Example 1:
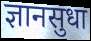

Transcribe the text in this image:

ज्ञानसुधा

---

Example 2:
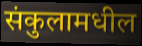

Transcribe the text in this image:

संकुलामधील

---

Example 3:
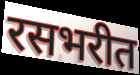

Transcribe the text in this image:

रसभरीत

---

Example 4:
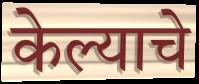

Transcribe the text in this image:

केल्याचे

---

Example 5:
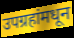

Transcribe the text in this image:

उपग्रहांमधून